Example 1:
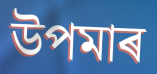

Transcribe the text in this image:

উপমাৰ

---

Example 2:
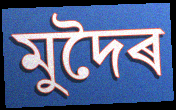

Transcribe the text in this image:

মুদৈৰ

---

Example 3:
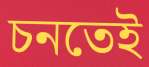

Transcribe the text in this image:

চনতেই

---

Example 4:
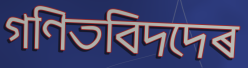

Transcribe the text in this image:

গণিতবিদদেৰ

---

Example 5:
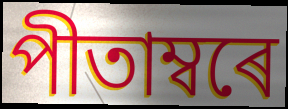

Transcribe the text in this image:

পীতাম্বৰে